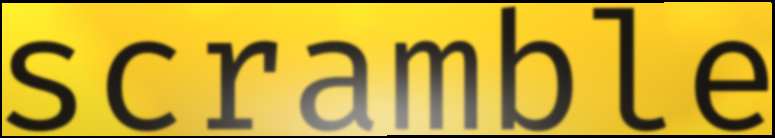
scramble